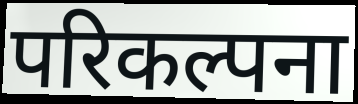
परिकल्पना